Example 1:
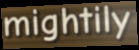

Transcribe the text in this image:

mightily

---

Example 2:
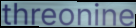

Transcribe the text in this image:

threonine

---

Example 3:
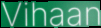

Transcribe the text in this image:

Vihaan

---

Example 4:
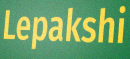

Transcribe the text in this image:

Lepakshi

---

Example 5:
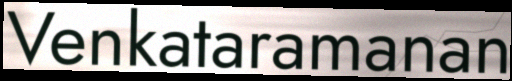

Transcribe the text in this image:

Venkataramanan